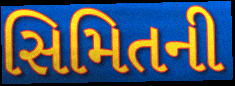
સિમિતની